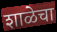
शाळेचा